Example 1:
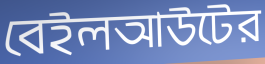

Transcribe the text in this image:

বেইলআউটের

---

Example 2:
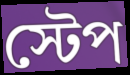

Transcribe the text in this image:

স্টেপ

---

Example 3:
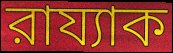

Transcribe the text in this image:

রায্যাক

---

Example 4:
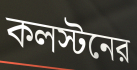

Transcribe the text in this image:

কলস্টনের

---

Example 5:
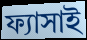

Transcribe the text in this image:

ফ্যাসাই